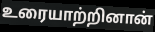
உரையாற்றினான்